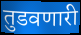
तुडवणारी